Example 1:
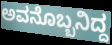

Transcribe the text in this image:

ಅವನೊಬ್ಬನಿದ್ದ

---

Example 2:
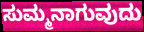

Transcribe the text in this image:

ಸುಮ್ಮನಾಗುವುದು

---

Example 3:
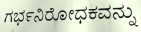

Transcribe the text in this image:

ಗರ್ಭನಿರೋಧಕವನ್ನು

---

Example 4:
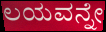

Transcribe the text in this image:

ಲಯವನ್ನೇ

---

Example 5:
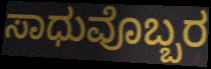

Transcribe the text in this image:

ಸಾಧುವೊಬ್ಬರ